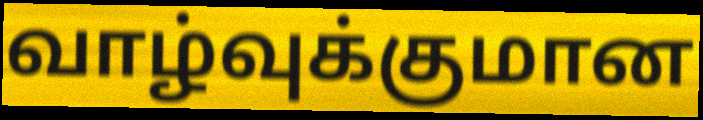
வாழ்வுக்குமான